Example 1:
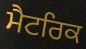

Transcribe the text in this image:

ਮੈਟਰਿਕ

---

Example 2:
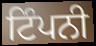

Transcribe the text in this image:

ਟਿੰਪਨੀ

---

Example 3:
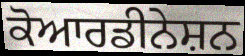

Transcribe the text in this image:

ਕੋਆਰਡੀਨੇਸ਼ਨ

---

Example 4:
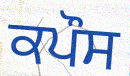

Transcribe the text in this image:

ਕਪੌਸ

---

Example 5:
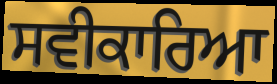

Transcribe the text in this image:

ਸਵੀਕਾਰਿਆ